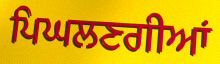
ਪਿਘਲਣਗੀਆਂ